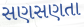
સણસણતા